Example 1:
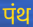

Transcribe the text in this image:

पंथ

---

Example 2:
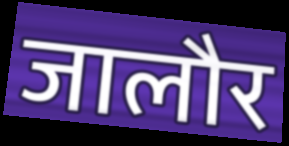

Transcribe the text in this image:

जालौर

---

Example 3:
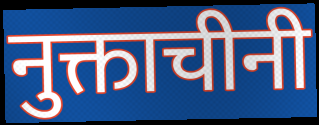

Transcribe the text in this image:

नुक्ताचीनी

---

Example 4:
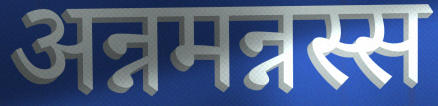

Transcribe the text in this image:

अन्नमन्नस्स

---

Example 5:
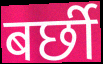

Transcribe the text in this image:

बर्छी